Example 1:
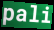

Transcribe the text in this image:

pali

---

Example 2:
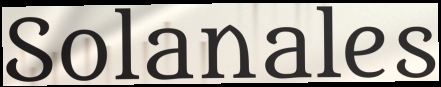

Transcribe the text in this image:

Solanales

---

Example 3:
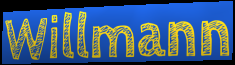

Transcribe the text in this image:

Willmann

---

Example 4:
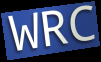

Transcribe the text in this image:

WRC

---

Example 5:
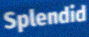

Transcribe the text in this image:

Splendid